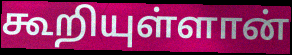
கூறியுள்ளான்